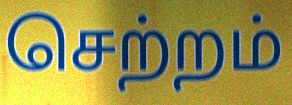
செற்றம்